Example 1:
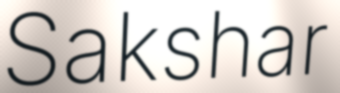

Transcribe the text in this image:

Sakshar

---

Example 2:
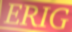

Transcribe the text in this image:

ERIG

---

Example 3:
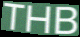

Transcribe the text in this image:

THB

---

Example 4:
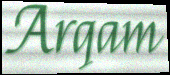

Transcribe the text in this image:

Arqam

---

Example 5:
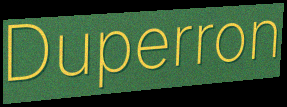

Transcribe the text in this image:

Duperron